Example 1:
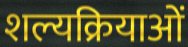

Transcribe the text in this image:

शल्यक्रियाओं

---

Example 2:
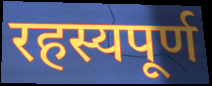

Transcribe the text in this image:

रहस्यपूर्ण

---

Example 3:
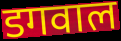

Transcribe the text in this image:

डगवाल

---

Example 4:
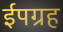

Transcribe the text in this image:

ईपग्रह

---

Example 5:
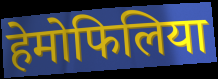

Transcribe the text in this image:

हेमोफिलिया